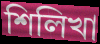
শিলিখা